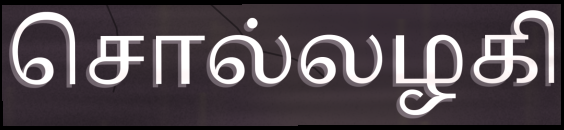
சொல்லழகி